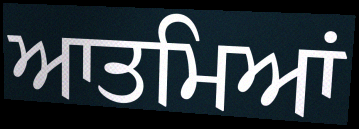
ਆਤਮਿਆਂ